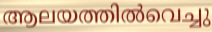
ആലയത്തിൽവെച്ചു